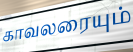
காவலரையும்